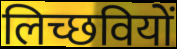
लिच्छवियों